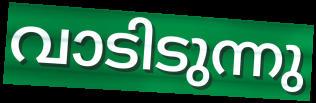
വാടിടുന്നു